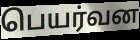
பெயர்வன